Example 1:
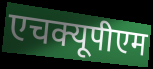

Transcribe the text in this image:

एचक्यूपीएम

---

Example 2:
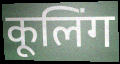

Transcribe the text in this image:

कूलिंग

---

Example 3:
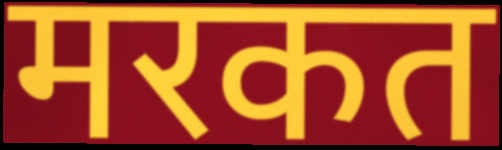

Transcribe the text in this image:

मरकत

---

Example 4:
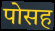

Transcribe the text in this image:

पोसह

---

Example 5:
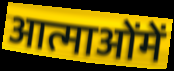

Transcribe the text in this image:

आत्माओंमें